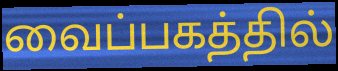
வைப்பகத்தில்